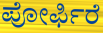
ಪೋರ್ಫಿರೆ